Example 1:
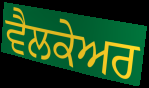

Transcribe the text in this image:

ਵੈਲਕੇਅਰ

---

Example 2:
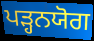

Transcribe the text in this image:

ਪੜ੍ਹਨਯੋਗ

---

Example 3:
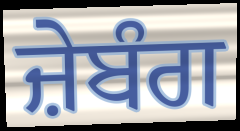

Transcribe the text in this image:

ਜ਼ੇਬੰਗ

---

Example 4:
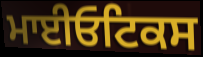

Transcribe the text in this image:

ਮਾਈਓਟਿਕਸ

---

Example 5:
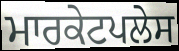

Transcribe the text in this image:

ਮਾਰਕੇਟਪਲੇਸ